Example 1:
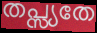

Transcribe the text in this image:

തപ്സ്യതേ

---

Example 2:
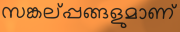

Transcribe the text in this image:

സങ്കല്പ്പങ്ങളുമാണ്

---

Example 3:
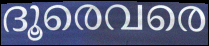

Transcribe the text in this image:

ദൂരെവരെ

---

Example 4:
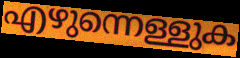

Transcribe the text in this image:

എഴുന്നെള്ളുക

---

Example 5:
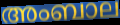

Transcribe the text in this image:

അംബാല